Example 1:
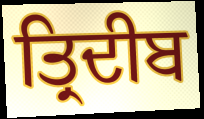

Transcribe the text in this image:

ਤ੍ਰਿਦੀਬ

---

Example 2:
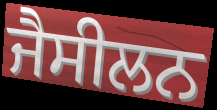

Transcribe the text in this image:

ਜੈਸੀਲਨ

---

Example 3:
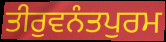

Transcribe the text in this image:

ਤੀਰੁਵਨੰਤਪੁਰਮ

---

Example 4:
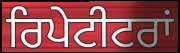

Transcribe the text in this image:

ਰਿਪੇਟੀਟਰਾਂ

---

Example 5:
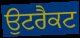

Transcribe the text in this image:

ਉਟਰੈਕਟ